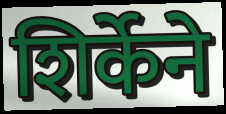
शिर्केने